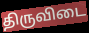
திருவிடை